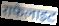
राफेलाइट